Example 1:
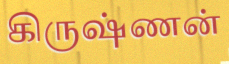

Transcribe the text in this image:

கிருஷ்ணன்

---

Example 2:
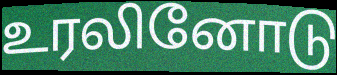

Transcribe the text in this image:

உரலினோடு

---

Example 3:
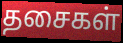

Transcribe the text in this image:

தசைகள்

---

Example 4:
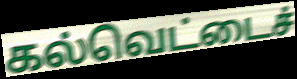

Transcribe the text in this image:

கல்வெட்டைச்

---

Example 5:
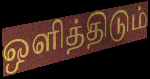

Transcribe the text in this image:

ஒளித்திடும்